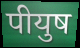
पीयुष